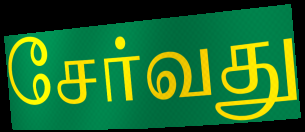
சேர்வது